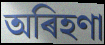
অৰিহণা